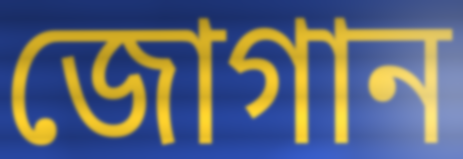
জোগান